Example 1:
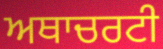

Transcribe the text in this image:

ਅਥਾਚਰਟੀ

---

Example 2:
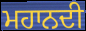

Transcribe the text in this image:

ਮਹਾਨਦੀ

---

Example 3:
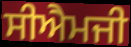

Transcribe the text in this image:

ਸੀਐਮਜੀ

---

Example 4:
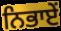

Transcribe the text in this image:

ਨਿਭਾਏਂ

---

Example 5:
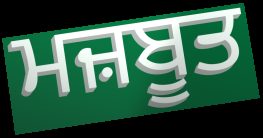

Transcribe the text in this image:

ਮਜ਼ਬੂਤ